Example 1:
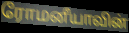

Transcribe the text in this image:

ரோமனீயாவின்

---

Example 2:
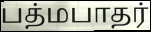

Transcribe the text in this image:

பத்மபாதர்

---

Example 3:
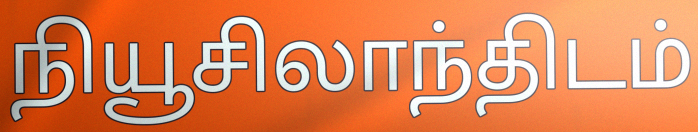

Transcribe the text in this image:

நியூசிலாந்திடம்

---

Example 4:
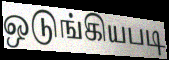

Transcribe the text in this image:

ஒடுங்கியபடி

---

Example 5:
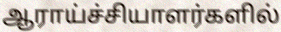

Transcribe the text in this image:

ஆராய்ச்சியாளர்களில்